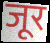
जूर